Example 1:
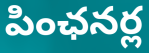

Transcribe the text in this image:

పింఛనర్ల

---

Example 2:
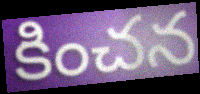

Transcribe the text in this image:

కించన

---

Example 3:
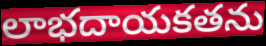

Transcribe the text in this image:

లాభదాయకతను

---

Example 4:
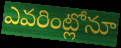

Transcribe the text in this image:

ఎవరింట్లోనూ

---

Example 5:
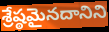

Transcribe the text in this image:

శ్రేష్ఠమైనదానిని